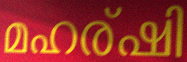
മഹര്ഷി